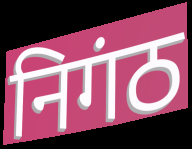
निगंठ